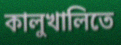
কালুখালিতে